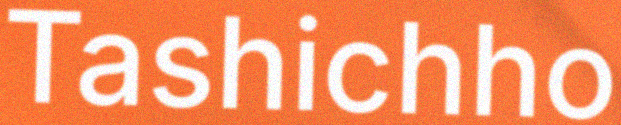
Tashichho